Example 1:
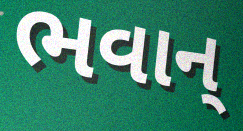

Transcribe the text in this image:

ભવાન્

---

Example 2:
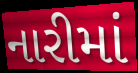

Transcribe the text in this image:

નારીમાં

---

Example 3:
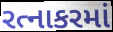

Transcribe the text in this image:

રત્નાકરમાં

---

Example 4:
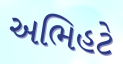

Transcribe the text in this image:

અભિહટે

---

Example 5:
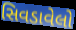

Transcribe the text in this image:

સિવડાવેલો